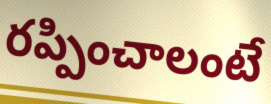
రప్పించాలంటే